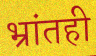
भ्रांतही